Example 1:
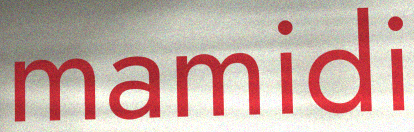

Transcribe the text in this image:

mamidi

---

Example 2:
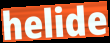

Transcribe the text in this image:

helide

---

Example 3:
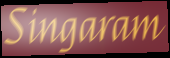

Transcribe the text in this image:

Singaram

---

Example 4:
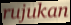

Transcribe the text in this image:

rujukan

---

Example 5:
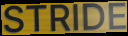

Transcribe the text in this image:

STRIDE